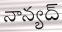
నాన్యద్